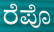
ರೆಪೊ